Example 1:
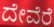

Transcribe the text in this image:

ದೇವೆರೆ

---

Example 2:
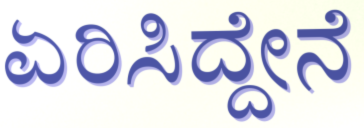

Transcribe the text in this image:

ಏರಿಸಿದ್ದೇನೆ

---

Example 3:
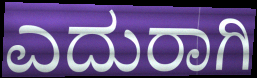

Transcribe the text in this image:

ಎದುರಾಗಿ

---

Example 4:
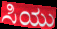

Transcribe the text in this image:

ಸಿಯು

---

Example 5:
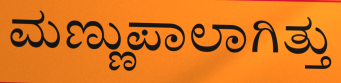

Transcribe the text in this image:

ಮಣ್ಣುಪಾಲಾಗಿತ್ತು